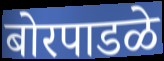
बोरपाडळे